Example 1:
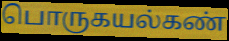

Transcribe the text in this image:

பொருகயல்கண்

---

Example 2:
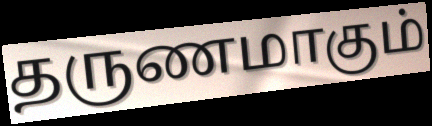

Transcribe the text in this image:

தருணமாகும்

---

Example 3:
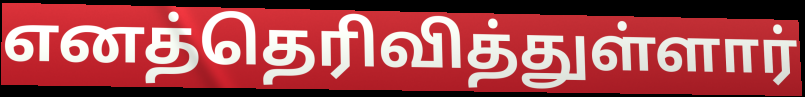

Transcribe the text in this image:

எனத்தெரிவித்துள்ளார்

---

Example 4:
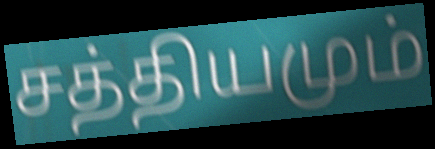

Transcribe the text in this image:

சத்தியமும்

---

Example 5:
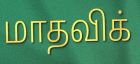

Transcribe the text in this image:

மாதவிக்